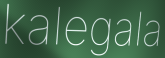
kalegala